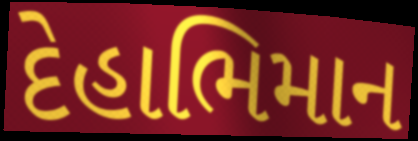
દેહાભિમાન